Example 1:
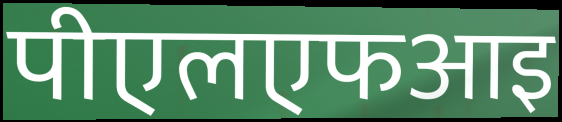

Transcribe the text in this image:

पीएलएफआइ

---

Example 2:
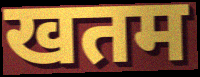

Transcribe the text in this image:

खतम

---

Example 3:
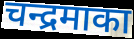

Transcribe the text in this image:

चन्द्रमाका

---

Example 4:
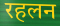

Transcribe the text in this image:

रहलन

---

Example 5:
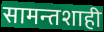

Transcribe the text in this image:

सामन्तशाही